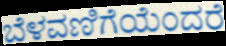
ಬೆಳವಣಿಗೆಯೆಂದರೆ